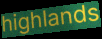
highlands